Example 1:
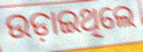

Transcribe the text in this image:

ଉଡ଼ାଇଥିଲେ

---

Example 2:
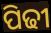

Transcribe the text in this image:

ପିଢୀ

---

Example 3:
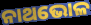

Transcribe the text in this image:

ନାଥଭୋଳ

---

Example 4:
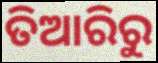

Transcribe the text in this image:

ତିଆରିରୁ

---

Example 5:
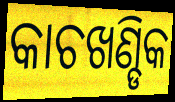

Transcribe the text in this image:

କାଚଖଣ୍ଡିକ